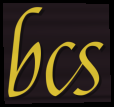
bcs